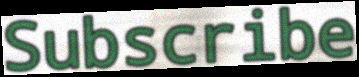
Subscribe